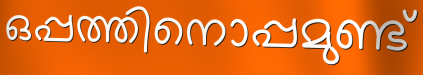
ഒപ്പത്തിനൊപ്പമുണ്ട്